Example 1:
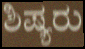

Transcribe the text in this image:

ಶಿಷ್ಯರು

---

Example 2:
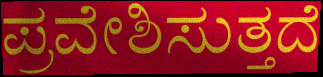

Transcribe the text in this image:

ಪ್ರವೇಶಿಸುತ್ತದೆ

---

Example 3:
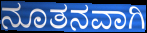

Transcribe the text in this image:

ನೂತನವಾಗಿ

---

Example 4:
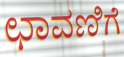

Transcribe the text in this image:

ಛಾವಣಿಗೆ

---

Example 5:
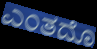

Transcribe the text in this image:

ಎಂತದೊ